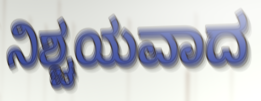
ನಿಶ್ಚಯವಾದ